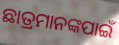
ଛାତ୍ରମାନଙ୍କପାଇଁ